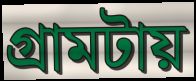
গ্রামটায়